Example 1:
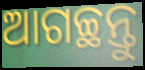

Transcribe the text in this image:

ଆଗଚ୍ଛନ୍ତୁ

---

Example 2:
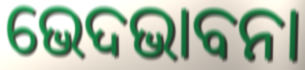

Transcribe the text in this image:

ଭେଦଭାବନା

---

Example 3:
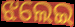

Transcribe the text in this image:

ଝଲେଇ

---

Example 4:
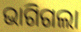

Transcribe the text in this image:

ଭାଗିଗଲା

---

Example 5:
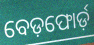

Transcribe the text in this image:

ବେଡ଼ଫୋର୍ଡ଼